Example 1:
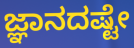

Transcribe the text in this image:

ಜ್ಞಾನದಷ್ಟೇ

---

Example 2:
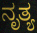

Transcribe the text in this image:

ನೃತ್ಯ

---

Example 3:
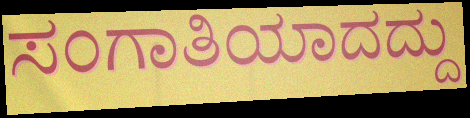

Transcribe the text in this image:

ಸಂಗಾತಿಯಾದದ್ದು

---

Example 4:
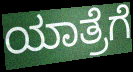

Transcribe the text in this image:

ಯಾತ್ರೆಗೆ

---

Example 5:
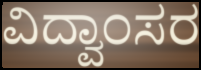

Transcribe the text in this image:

ವಿದ್ವಾಂಸರ